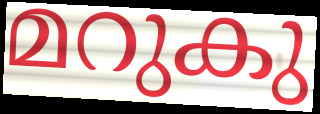
മറുകു